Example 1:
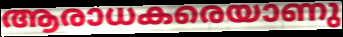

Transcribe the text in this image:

ആരാധകരെയാണു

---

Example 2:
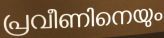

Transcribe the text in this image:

പ്രവീണിനെയും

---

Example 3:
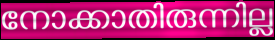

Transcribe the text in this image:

നോക്കാതിരുന്നില്ല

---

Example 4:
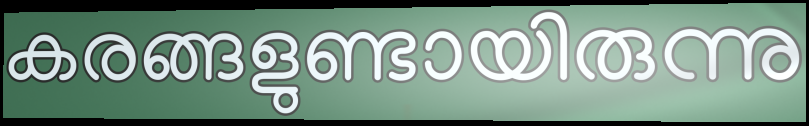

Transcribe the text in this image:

കരങ്ങളുണ്ടായിരുന്നു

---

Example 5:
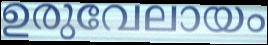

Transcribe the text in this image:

ഉരുവേലായം